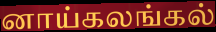
னாய்கலங்கல்